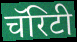
चॅरिटी